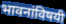
भावनांविषयी